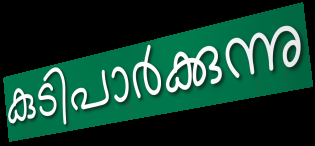
കുടിപാർക്കുന്നു